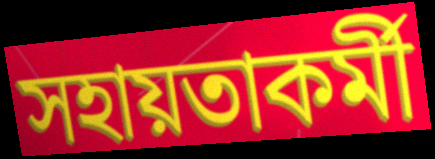
সহায়তাকর্মী